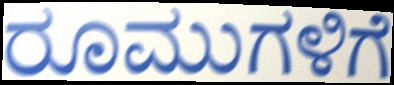
ರೂಮುಗಳಿಗೆ